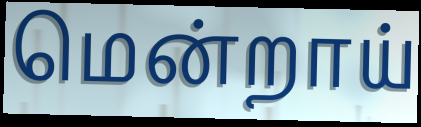
மென்றாய்